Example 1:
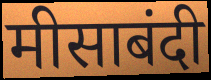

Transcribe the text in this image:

मीसाबंदी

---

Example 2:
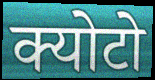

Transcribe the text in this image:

क्योटो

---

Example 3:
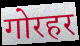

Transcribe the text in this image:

गोरहर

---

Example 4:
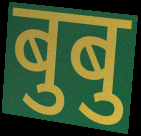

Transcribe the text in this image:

बुबु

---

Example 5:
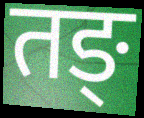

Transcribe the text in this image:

तङ्